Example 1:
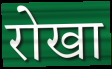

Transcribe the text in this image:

रोखा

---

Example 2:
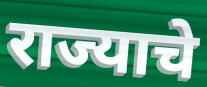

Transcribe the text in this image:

राज्याचे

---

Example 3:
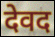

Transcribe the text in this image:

देवद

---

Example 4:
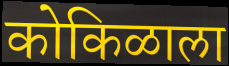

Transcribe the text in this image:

कोकिळाला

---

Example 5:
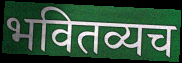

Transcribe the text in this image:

भवितव्यच